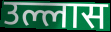
उल्लास